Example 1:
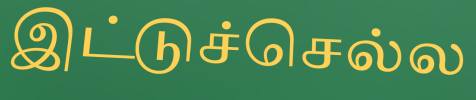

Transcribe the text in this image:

இட்டுச்செல்ல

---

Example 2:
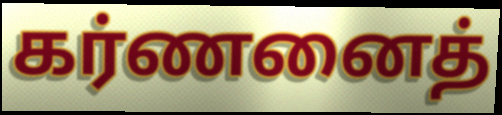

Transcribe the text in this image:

கர்ணனைத்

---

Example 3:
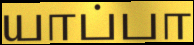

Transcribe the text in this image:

யாப்பா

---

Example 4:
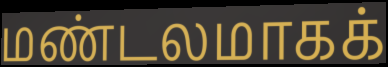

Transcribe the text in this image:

மண்டலமாகக்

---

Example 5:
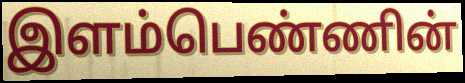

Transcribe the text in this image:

இளம்பெண்ணின்